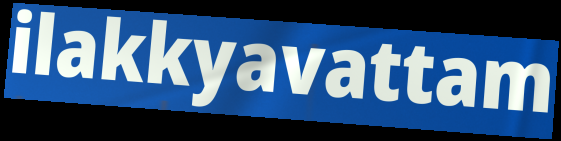
ilakkyavattam